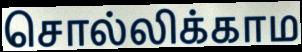
சொல்லிக்காம